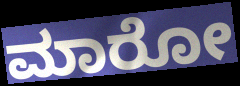
ಮಾರೋ